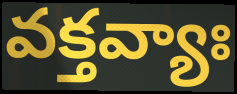
వక్తవ్యాః